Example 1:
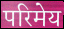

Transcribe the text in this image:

परिमेय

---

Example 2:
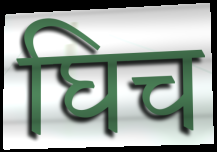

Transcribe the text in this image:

घिच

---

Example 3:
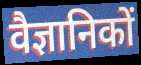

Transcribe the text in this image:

वैज्ञानिकों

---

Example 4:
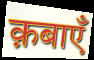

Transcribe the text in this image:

क़बाएँ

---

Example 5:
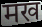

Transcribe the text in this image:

मख